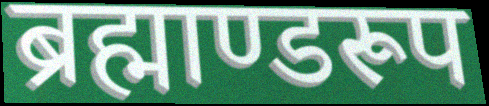
ब्रह्माण्डरूप